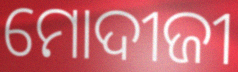
ମୋଦୀଜୀ